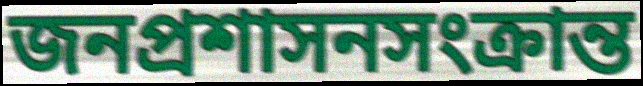
জনপ্রশাসনসংক্রান্ত